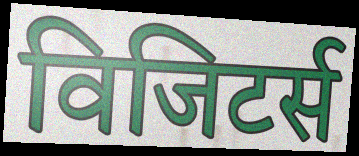
विजिटर्स